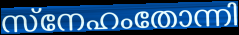
സ്‌നേഹംതോന്നി